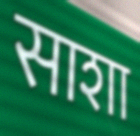
साशा